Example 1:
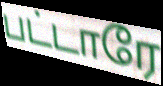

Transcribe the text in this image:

பட்டாரே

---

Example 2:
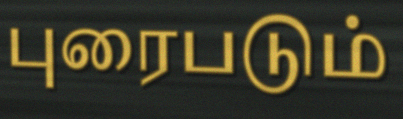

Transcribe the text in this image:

புரைபடும்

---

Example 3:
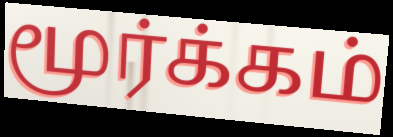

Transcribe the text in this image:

மூர்க்கம்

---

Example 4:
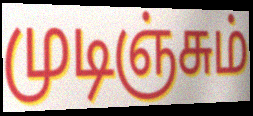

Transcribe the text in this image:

முடிஞ்சும்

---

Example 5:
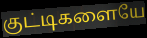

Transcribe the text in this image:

குட்டிகளையே